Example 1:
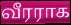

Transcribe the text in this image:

வீரராக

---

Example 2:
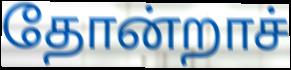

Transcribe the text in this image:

தோன்றாச்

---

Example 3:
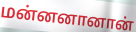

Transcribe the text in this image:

மன்னனானான்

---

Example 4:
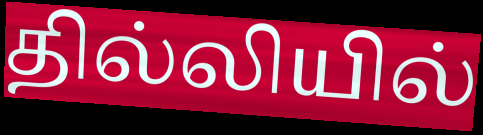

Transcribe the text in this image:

தில்லியில்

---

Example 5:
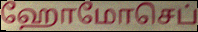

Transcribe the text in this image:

ஹோமோசெப்